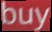
buy